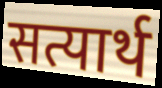
सत्यार्थ